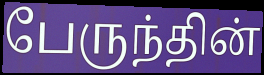
பேருந்தின்